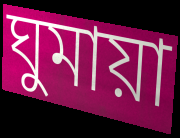
ঘুমায়া